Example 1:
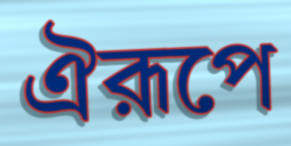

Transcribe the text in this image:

ঐরূপে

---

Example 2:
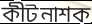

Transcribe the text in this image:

কীটনাশক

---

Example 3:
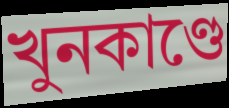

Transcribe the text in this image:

খুনকাণ্ডে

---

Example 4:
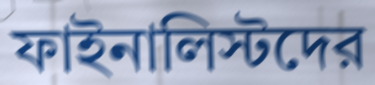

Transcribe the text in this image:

ফাইনালিস্টদের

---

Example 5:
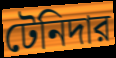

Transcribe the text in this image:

টেনিদার